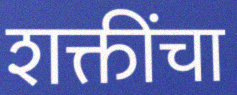
शक्तींचा